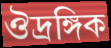
ঔদ্রঙ্গিক